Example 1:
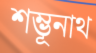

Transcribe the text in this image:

শম্ভূনাথ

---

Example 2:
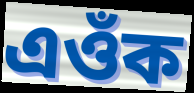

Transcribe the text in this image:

এওঁক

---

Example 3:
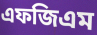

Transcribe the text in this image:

এফজিএম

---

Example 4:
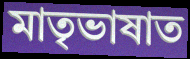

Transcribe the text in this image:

মাতৃভাষাত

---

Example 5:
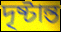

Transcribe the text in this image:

দৃষ্টান্ত